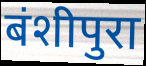
बंशीपुरा